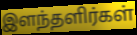
இளந்தளிர்கள்